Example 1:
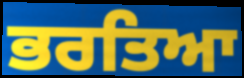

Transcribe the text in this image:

ਭਰਤਿਆ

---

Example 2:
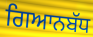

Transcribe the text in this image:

ਗਿਆਨਬੱਧ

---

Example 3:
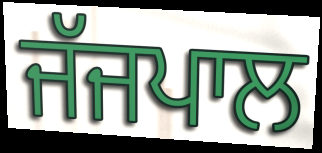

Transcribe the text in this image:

ਜੱਜਪਾਲ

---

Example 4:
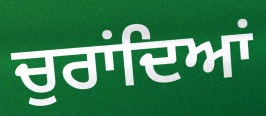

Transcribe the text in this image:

ਚੁਰਾਂਦਿਆਂ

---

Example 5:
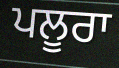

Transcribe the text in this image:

ਪਲੂਰਾ